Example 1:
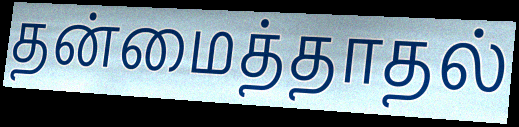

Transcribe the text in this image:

தன்மைத்தாதல்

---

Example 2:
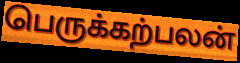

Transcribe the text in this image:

பெருக்கற்பலன்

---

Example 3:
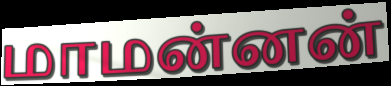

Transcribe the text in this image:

மாமன்னன்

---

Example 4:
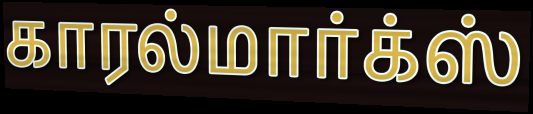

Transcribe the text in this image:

காரல்மார்க்ஸ்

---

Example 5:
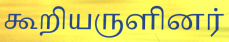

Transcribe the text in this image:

கூறியருளினர்